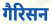
गैरिसन